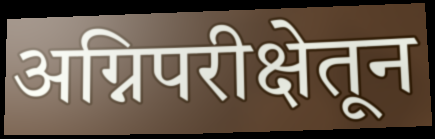
अग्निपरीक्षेतून